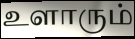
உளாரும்